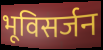
भूविसर्जन